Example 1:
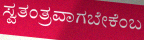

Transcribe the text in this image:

ಸ್ವತಂತ್ರವಾಗಬೇಕೆಂಬ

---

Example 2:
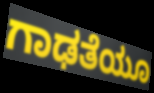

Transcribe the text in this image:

ಗಾಢತೆಯೂ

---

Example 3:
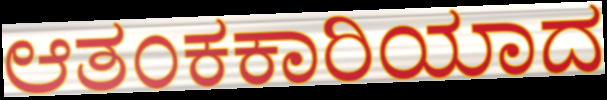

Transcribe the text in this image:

ಆತಂಕಕಾರಿಯಾದ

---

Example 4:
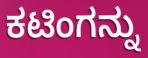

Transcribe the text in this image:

ಕಟಿಂಗನ್ನು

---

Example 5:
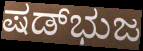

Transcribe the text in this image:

ಷಡ್‌ಭುಜ